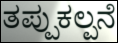
ತಪ್ಪುಕಲ್ಪನೆ